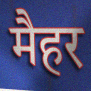
मैहर